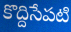
కొద్దిసేపటి